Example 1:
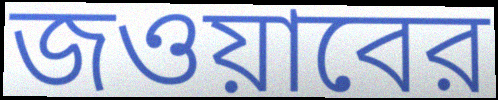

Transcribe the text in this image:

জওয়াবের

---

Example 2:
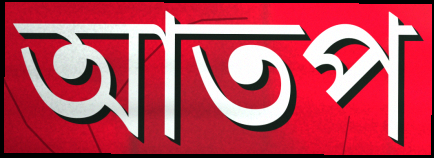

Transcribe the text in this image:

আতপ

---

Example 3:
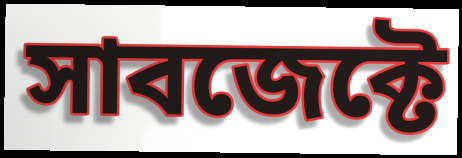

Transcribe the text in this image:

সাবজেক্টে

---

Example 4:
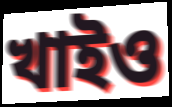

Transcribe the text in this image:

খাইও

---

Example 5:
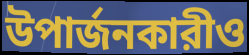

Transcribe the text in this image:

উপার্জনকারীও